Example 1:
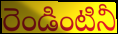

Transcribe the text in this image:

రెండింటినీ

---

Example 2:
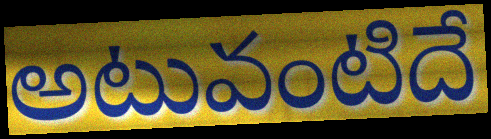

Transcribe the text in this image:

అటువంటిదే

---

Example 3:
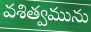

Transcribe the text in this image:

వశిత్వమును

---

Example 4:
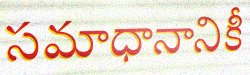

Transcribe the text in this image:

సమాధానానికీ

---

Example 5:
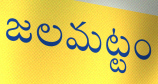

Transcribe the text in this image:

జలమట్టం